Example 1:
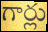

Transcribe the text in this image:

గార్లు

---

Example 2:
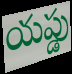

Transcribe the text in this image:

యప్డు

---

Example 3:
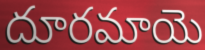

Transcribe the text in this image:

దూరమాయె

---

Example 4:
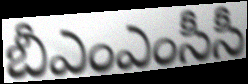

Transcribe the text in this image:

బీఎంఎంసీసీ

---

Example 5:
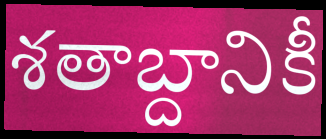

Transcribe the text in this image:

శతాబ్దానికీ